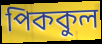
পিককুল